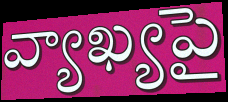
వ్యాఖ్యపై